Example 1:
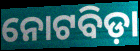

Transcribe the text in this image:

ନୋଟବିଡ଼ା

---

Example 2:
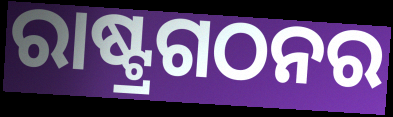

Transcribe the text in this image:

ରାଷ୍ଟ୍ରଗଠନର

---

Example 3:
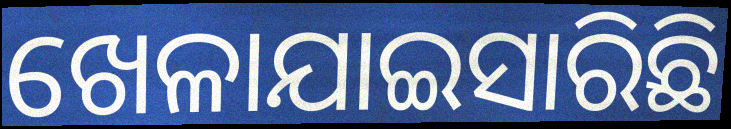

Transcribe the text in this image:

ଖେଳାଯାଇସାରିଛି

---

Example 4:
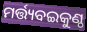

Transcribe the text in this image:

ମର୍ତ୍ତ୍ୟବଇକୁଣ୍ଠ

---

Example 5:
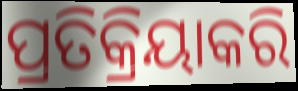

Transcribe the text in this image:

ପ୍ରତିକ୍ରିୟାକରି